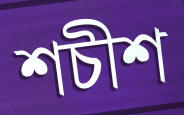
শচীশ